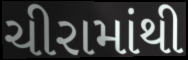
ચીરામાંથી